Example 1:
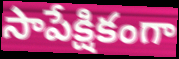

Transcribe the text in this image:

సాపేక్షికంగా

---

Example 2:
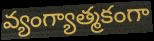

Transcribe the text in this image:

వ్యంగ్యాత్మకంగా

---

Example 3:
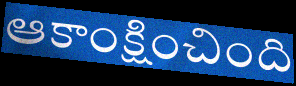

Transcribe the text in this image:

ఆకాంక్షించింది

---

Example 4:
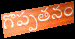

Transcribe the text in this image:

గొప్పతనం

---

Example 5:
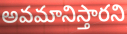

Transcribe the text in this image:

అవమానిస్తారని